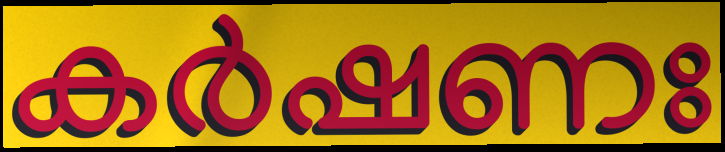
കർഷണഃ